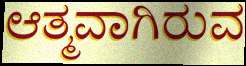
ಆತ್ಮವಾಗಿರುವ